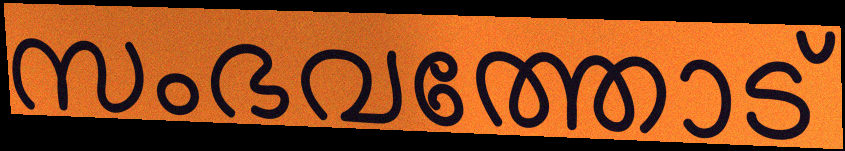
സംഭവത്തോട്